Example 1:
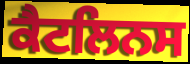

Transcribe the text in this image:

ਕੈਟਲਿਨਸ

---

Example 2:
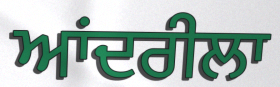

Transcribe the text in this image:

ਆਂਦਰੀਲਾ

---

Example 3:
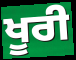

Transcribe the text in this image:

ਖੂਰੀ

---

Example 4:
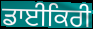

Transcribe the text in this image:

ਡਾਈਕਿਰੀ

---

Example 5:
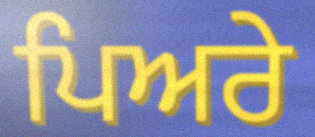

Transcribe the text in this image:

ਪਿਅਰੇ